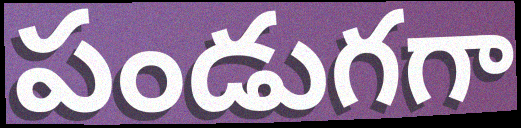
పండుగగా